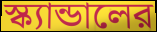
স্ক্যান্ডালের